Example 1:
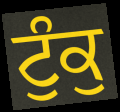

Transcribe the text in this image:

ਟੁੰਕੁ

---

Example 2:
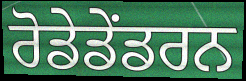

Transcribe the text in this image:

ਰੋਡੇਡੇਂਡਰਨ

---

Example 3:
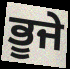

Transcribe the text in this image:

ਭੂਜੇ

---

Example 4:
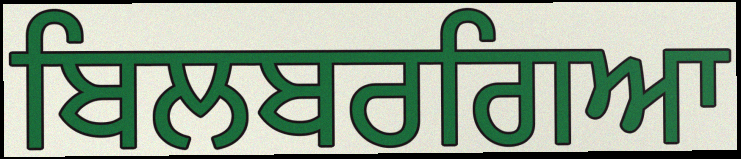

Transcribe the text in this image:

ਬਿਲਬਰਗਿਆ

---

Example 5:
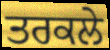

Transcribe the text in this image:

ਤਰਕਲੇ